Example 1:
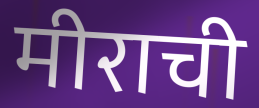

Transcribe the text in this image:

मीराची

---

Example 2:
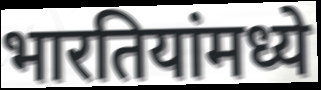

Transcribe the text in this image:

भारतियांमध्ये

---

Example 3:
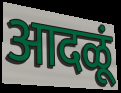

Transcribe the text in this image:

आदळूं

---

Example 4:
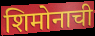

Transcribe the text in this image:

शिमोनाची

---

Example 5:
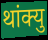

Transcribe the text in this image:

थांक्यु